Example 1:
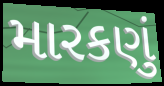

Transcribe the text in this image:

મારકણું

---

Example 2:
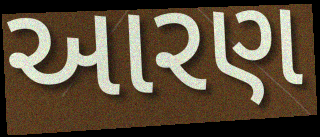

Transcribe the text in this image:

આરણ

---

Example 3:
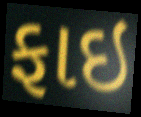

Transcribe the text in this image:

ફાઇ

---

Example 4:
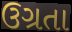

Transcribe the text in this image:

ઉગ્રતા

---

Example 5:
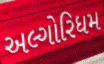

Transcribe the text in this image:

અલ્ગોરિધમ